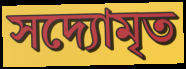
সদ্যোমৃত